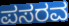
ಪಸರವ